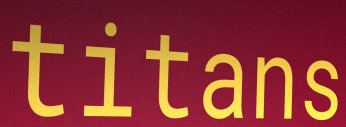
titans